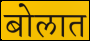
बोलात